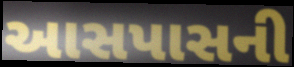
આસપાસની